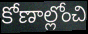
కోణాల్లోంచి